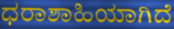
ಧರಾಶಾಹಿಯಾಗಿದೆ